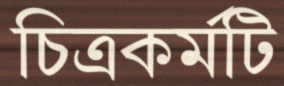
চিত্রকর্মটি